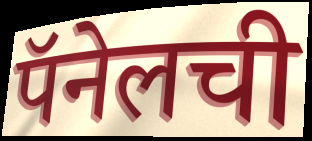
पॅनेलची